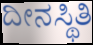
ದೀನಸ್ಥಿತಿ